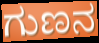
ಗುಣನ